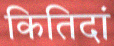
कितिदां